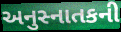
અનુસ્નાતકની